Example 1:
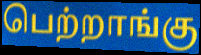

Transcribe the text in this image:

பெற்றாங்கு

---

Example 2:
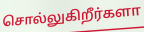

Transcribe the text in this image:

சொல்லுகிறீர்களா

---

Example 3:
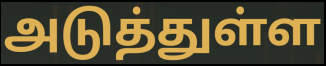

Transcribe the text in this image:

அடுத்துள்ள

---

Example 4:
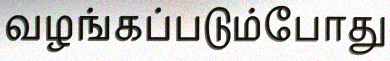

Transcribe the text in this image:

வழங்கப்படும்போது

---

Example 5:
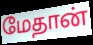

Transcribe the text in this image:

மேதான்